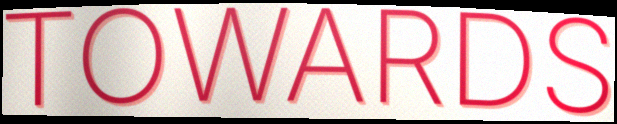
TOWARDS